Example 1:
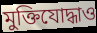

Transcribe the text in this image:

মুক্তিযোদ্ধাও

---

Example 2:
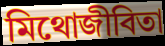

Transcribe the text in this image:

মিথোজীবিতা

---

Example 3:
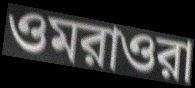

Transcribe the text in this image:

ওমরাওরা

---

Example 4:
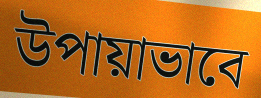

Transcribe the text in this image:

উপায়াভাবে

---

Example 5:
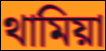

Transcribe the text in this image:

থামিয়া